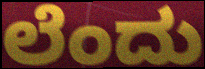
ಲೆಂದು